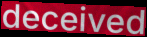
deceived